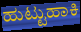
ಹುಟ್ಟುಹಾಕಿ